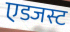
एडजस्ट